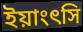
ইয়াংৎসি